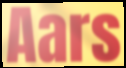
Aars